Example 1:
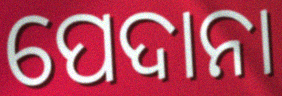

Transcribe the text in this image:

ପେଦାନା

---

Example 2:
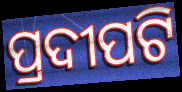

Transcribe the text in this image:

ପ୍ରଦୀପଟି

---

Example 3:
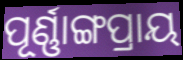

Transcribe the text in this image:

ପୂର୍ଣ୍ଣାଙ୍ଗପ୍ରାୟ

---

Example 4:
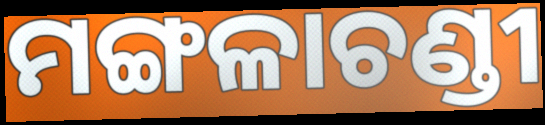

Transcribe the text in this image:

ମଙ୍ଗଳାଚଣ୍ଡୀ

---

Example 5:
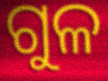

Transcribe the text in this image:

ଗୁଳ